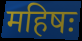
महिषः